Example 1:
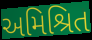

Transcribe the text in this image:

અમિશ્રિત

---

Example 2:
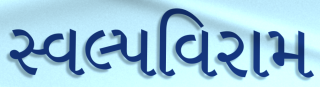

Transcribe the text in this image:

સ્વલ્પવિરામ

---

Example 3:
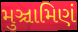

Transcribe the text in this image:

મુઞ્ચામિણં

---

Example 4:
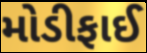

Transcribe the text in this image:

મોડીફાઈ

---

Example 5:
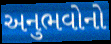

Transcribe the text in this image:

અનુભવોનો